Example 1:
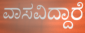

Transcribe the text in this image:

ವಾಸವಿದ್ದಾರೆ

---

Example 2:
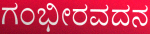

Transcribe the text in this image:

ಗಂಭೀರವದನ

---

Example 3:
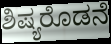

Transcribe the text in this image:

ಶಿಷ್ಯರೊಡನೆ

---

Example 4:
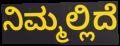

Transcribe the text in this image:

ನಿಮ್ಮಲ್ಲಿದೆ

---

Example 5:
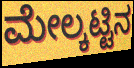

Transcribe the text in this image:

ಮೇಲ್ಕಟ್ಟಿನ